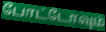
போட்டோவும்